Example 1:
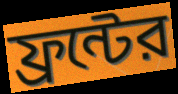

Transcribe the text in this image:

ফ্রন্টের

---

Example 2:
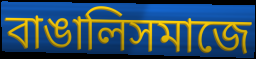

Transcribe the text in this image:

বাঙালিসমাজে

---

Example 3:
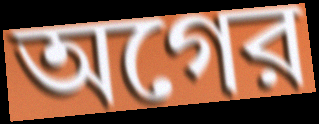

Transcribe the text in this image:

অগের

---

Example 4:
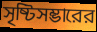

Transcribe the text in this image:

সৃষ্টিসম্ভারের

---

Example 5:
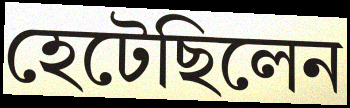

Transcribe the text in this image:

হেটেছিলেন